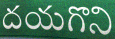
దయగొని